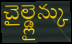
చైల్డ్లైన్కు